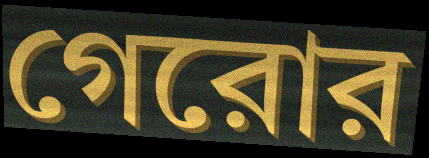
গেরোর